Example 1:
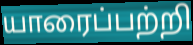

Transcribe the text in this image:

யாரைப்பற்றி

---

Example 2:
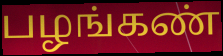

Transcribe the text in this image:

பழங்கண்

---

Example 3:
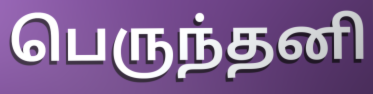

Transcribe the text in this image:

பெருந்தனி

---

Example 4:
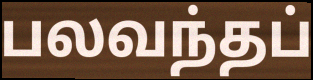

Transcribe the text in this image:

பலவந்தப்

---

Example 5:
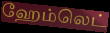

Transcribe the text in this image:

ஹேம்லெட்